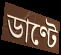
ডাণ্টে